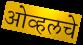
ओव्हलचे